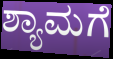
ಶ್ಯಾಮಗೆ